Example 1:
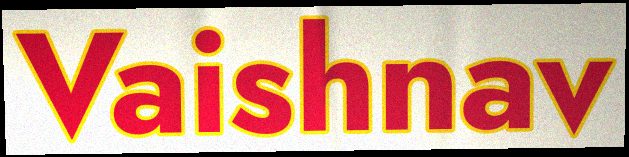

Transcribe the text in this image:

Vaishnav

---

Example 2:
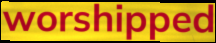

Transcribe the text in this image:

worshipped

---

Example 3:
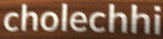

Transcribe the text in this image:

cholechhi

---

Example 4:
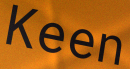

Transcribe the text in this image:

Keen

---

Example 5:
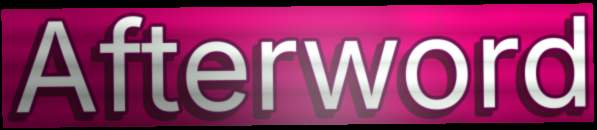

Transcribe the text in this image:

Afterword